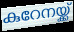
കുറേനയ്ക്ക്